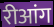
रीआंग